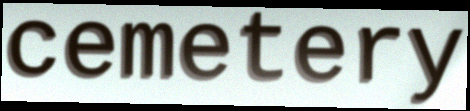
cemetery